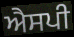
ਐਸਪੀ